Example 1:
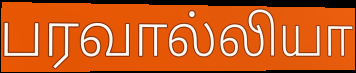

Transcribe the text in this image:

பரவால்லியா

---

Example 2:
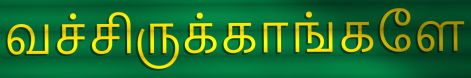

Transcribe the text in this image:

வச்சிருக்காங்களே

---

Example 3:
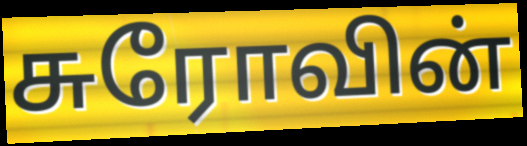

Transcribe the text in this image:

சுரோவின்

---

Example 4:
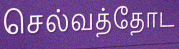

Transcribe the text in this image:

செல்வத்தோட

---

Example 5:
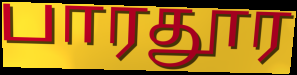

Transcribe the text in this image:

பாரதூர